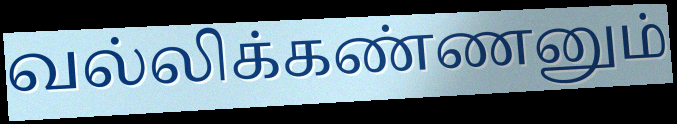
வல்லிக்கண்ணனும்